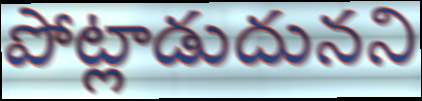
పోట్లాడుదునని